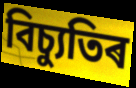
বিচ্যুতিৰ